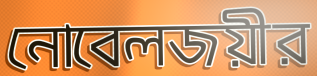
নোবেলজয়ীর